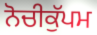
ਨੋਚੀਕੁੱਪਮ